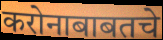
करोनाबाबतचे